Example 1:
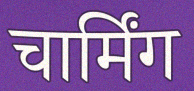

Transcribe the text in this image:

चार्मिंग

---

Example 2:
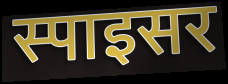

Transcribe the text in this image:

स्पाइसर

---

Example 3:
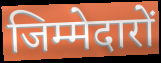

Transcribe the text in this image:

जिम्मेदारों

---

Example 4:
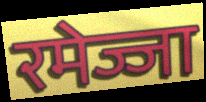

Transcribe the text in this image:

रमेज्जा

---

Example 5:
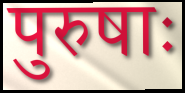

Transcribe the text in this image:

पुरुषाः